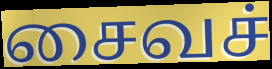
சைவச்